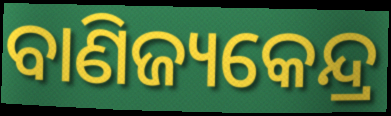
ବାଣିଜ୍ୟକେନ୍ଦ୍ର